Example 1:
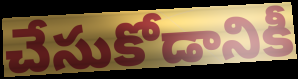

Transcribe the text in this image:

చేసుకోడానికీ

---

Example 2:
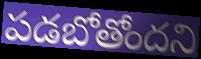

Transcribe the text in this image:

పడబోతోందని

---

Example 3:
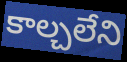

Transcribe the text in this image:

కాల్చలేని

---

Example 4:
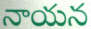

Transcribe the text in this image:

నాయన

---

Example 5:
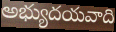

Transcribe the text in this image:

అభ్యుదయవాది